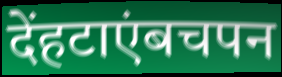
देंहटाएंबचपन